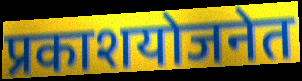
प्रकाशयोजनेत